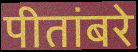
पीतांबरे